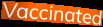
Vaccinated